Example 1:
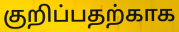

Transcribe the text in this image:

குறிப்பதற்காக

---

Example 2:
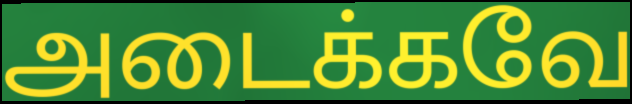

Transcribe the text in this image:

அடைக்கவே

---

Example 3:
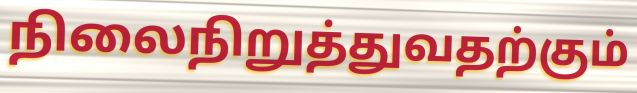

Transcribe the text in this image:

நிலைநிறுத்துவதற்கும்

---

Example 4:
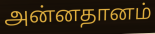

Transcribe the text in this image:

அன்னதானம்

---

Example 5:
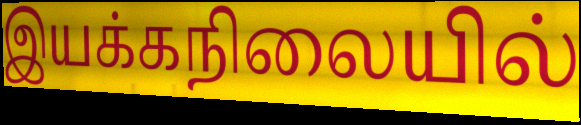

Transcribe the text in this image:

இயக்கநிலையில்